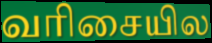
வரிசையில